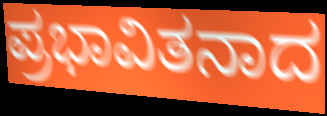
ಪ್ರಭಾವಿತನಾದ